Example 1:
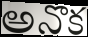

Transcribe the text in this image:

అనొక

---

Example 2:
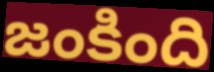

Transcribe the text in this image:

జంకింది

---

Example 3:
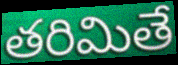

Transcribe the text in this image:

తరిమితే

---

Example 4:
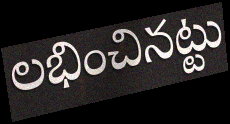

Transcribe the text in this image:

లభించినట్టు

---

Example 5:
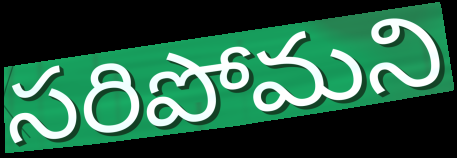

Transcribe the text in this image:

సరిపోమని